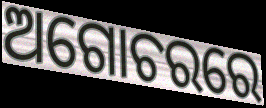
ଅଗୋଚରରେ